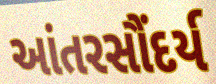
આંતરસૌંદર્ય